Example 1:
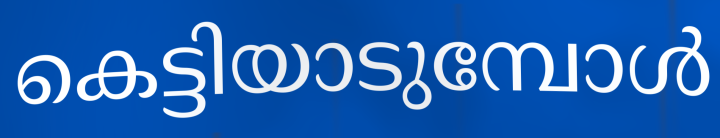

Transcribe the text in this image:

കെട്ടിയാടുമ്പോൾ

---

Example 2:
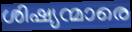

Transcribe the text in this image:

ശിഷ്യന്മാരെ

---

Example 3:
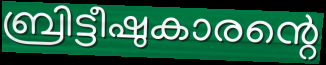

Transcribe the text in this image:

ബ്രിട്ടീഷുകാരന്റെ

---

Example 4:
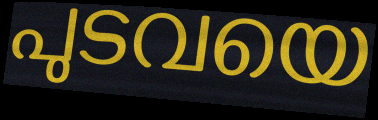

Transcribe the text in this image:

പുടവയെ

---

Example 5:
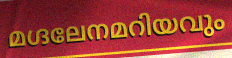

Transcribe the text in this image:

മഗ്ദലേനമറിയവും